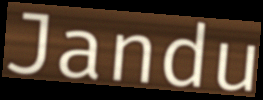
Jandu